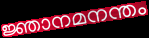
ജ്ഞാനമനന്തം